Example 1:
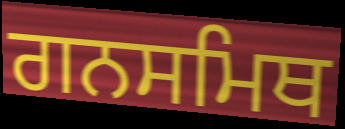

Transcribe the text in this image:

ਗਨਸਮਿਥ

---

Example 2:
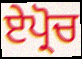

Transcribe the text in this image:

ਏਪ੍ਰੋਚ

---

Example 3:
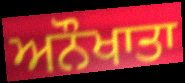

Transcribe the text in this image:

ਅਨੌਖਾਤਾ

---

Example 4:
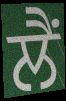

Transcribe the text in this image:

ਲੈਂ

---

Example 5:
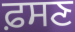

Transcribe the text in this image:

ਫ਼ਸਣ